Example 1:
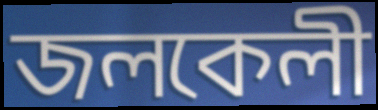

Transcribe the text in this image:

জলকেলী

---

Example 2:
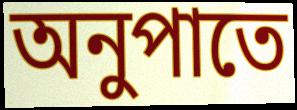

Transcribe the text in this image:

অনুপাতে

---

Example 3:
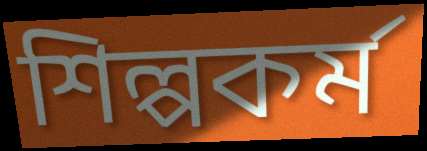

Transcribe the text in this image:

শিল্পকৰ্ম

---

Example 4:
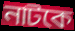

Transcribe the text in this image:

নাটকে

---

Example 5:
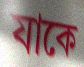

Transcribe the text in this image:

যাকে